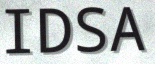
IDSA